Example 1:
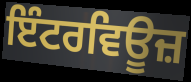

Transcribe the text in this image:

ਇੰਟਰਵਿਊਜ਼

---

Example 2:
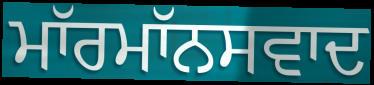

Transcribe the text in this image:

ਮਾੱਰਮਾੱਨਸਵਾਦ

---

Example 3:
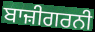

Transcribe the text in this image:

ਬਾਜ਼ੀਗਰਨੀ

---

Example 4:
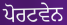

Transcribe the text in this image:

ਪੋਰਟਵੇਨ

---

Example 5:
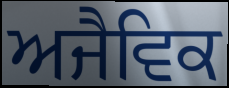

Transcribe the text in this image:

ਅਜੈਵਿਕ